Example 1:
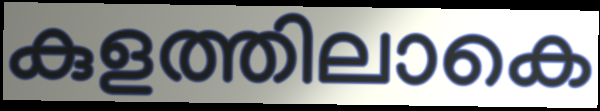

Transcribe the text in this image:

കുളത്തിലാകെ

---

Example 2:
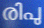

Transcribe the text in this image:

രിപു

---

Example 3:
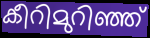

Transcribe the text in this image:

കീറിമുറിഞ്ഞ്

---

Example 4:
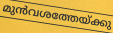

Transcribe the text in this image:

മുൻവശത്തേയ്ക്കു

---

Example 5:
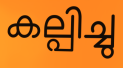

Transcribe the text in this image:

കല്പിച്ചു